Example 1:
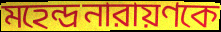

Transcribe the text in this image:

মহেন্দ্রনারায়ণকে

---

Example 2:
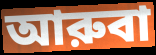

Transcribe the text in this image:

আরুবা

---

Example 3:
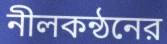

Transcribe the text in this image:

নীলকন্ঠনের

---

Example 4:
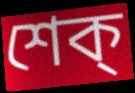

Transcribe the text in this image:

শেক্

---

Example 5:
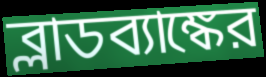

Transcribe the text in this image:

ব্লাডব্যাঙ্কের